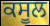
ਕਸੂਲ